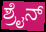
ಶ್ರೈನ್